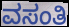
ವಸಂತಿ